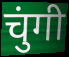
चुंगी